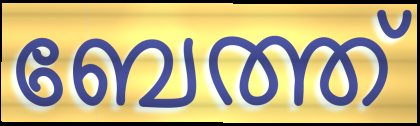
ബേത്ത്